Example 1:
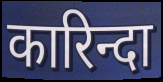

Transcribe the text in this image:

कारिन्दा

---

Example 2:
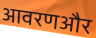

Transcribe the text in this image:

आवरणऔर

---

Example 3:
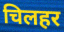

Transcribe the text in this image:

चिलहर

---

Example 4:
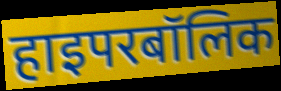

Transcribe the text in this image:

हाइपरबॉलिक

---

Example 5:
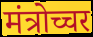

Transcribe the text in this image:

मंत्रोच्चर